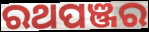
ରଥପଞ୍ଜର